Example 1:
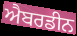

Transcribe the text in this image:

ਐਬਰਡੀਨ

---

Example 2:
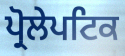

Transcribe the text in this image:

ਪ੍ਰੋਲੇਪਟਿਕ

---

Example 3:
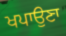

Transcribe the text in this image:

ਖਪਾਉਣਾ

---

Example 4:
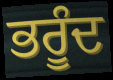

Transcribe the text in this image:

ਭਰੂੰਦ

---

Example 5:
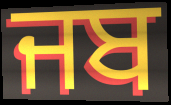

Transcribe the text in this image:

ਜਬ